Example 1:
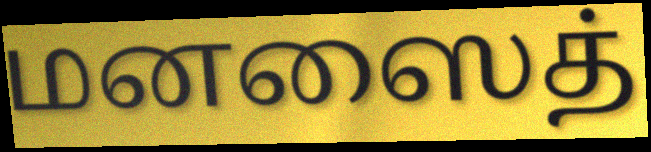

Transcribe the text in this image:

மனஸைத்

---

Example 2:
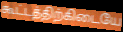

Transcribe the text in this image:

கூட்டத்திற்கிடையே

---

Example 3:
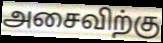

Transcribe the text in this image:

அசைவிற்கு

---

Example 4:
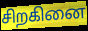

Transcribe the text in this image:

சிறகினை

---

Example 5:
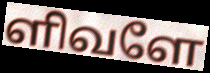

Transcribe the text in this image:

ளிவளே